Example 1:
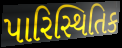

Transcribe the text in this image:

પારિસ્થિતિક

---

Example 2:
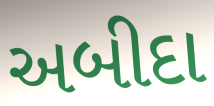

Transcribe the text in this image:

અબીદા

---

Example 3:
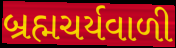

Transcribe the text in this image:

બ્રહ્મચર્યવાળી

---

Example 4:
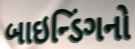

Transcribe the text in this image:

બાઇન્ડિંગનો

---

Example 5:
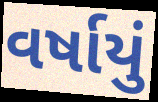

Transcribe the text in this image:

વર્ષાયું